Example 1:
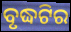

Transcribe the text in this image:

ବୃଦ୍ଧଟିର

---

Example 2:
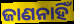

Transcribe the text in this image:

ଜାଣନାହିଁ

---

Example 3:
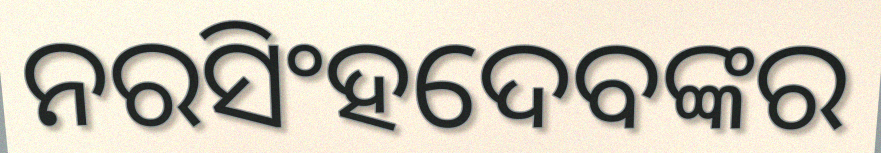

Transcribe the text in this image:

ନରସିଂହଦେବଙ୍କର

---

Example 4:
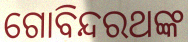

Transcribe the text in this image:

ଗୋବିନ୍ଦରଥଙ୍କ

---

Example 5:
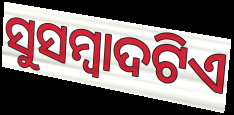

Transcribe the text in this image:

ସୁସମ୍ବାଦଟିଏ